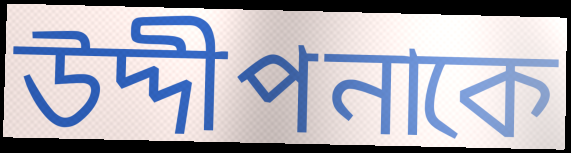
উদ্দীপনাকে